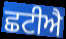
ਛਟੀਐ